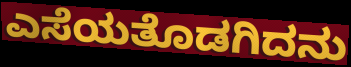
ಎಸೆಯತೊಡಗಿದನು